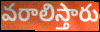
వరాలిస్తారు